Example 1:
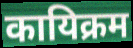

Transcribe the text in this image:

कायिक्रम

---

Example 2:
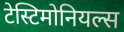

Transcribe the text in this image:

टेस्टिमोनियल्स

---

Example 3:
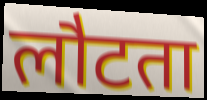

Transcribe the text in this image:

लौटता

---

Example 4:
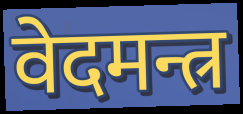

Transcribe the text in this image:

वेदमन्त्र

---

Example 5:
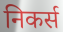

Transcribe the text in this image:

निकर्स